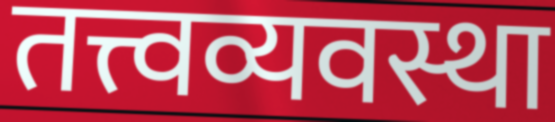
तत्त्वव्यवस्था